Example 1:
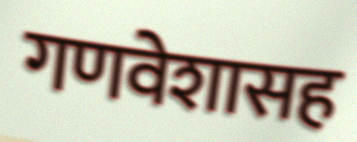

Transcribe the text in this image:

गणवेशासह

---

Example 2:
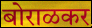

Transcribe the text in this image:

बोराळकर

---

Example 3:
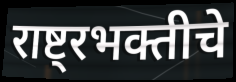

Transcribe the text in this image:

राष्ट्रभक्तीचे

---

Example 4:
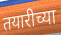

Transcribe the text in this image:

तयारीच्या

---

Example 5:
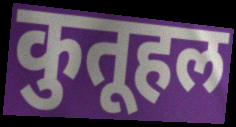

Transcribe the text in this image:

कुतूहल